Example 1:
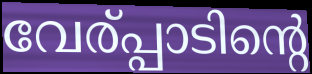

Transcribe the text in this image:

വേര്പ്പാടിന്റെ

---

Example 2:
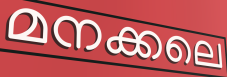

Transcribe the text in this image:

മനക്കലെ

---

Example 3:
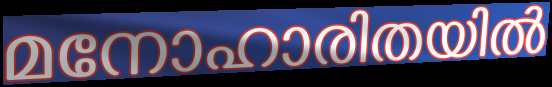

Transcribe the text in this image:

മനോഹാരിതയിൽ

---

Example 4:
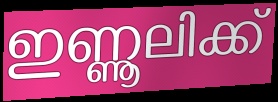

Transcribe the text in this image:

ഇണ്ണൂലിക്ക്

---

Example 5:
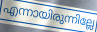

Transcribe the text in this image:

എന്നായിരുന്നില്ലേ